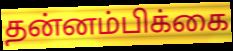
தன்னம்பிக்கை